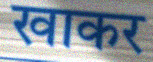
खाकर